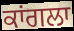
ਕਾਂਗਲਾ